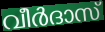
വീർദാസ്